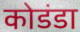
कोडंडा